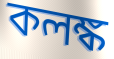
কলঙ্ক